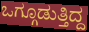
ಒಗ್ಗೂಡುತ್ತಿದ್ದ